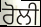
ਰੋਲੀ